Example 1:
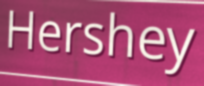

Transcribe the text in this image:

Hershey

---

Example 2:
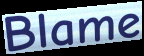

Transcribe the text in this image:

Blame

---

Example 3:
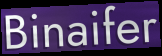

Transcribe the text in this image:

Binaifer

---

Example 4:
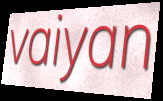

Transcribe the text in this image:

vaiyan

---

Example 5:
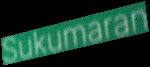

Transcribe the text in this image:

Sukumaran